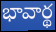
భావార్థ